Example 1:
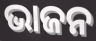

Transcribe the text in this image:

ଭାଜନ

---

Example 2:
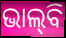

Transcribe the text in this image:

ଭାଲ୍‌ବି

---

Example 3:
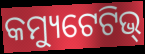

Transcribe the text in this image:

କମ୍ୟୁଟେଟିଭ୍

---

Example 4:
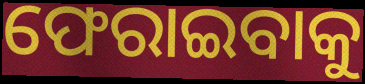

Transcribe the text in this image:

ଫେରାଇବାକୁ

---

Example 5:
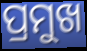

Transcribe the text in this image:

ପ୍ରମୁଖ